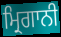
ਮ੍ਰਿਗਾਨੀ